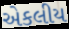
એકલીય